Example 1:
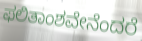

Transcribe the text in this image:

ಫಲಿತಾಂಶವೇನೆಂದರೆ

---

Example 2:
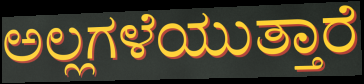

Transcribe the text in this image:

ಅಲ್ಲಗಳೆಯುತ್ತಾರೆ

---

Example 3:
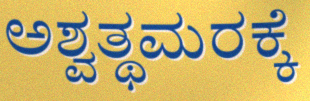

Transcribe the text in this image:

ಅಶ್ವತ್ಥಮರಕ್ಕೆ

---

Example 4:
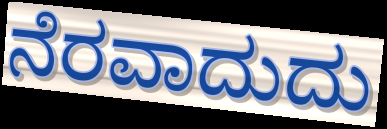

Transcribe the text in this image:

ನೆರವಾದುದು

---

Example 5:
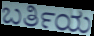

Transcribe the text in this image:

ಬರ್ತಿಯ